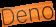
Deno